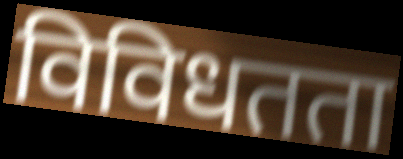
विविधतता